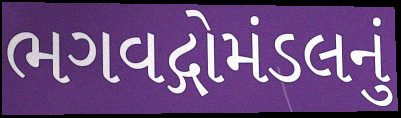
ભગવદ્ગોમંડલનું